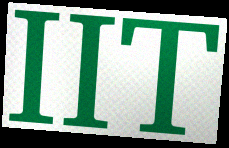
IIT